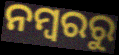
ନମ୍ବରରୁ